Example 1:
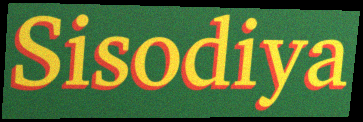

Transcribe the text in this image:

Sisodiya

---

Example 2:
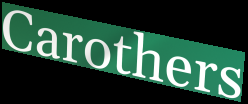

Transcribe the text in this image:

Carothers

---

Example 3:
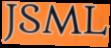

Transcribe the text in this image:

JSML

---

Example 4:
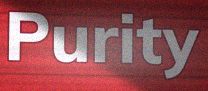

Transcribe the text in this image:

Purity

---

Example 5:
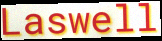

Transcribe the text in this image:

Laswell